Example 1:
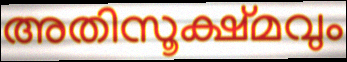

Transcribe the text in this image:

അതിസൂക്ഷ്മവും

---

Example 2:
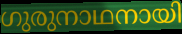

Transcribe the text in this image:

ഗുരുനാഥനായി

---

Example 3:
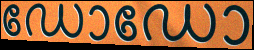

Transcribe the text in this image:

ഡോഡോ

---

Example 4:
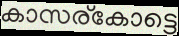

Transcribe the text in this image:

കാസര്കോട്ടെ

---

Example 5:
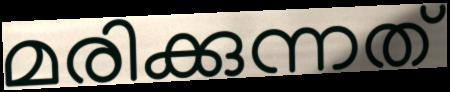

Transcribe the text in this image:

മരിക്കുന്നത്